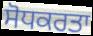
ਸੋਧਕਰਤਾ